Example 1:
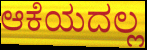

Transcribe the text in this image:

ಆಕೆಯದಲ್ಲ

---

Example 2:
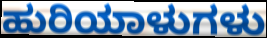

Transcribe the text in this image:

ಹುರಿಯಾಳುಗಳು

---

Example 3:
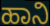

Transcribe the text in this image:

ಹಾನಿ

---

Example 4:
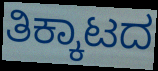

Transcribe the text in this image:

ತಿಕ್ಕಾಟದ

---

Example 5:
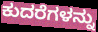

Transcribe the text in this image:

ಕುದರೆಗಳನ್ನು